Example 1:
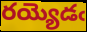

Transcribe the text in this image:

రయ్యెడఁ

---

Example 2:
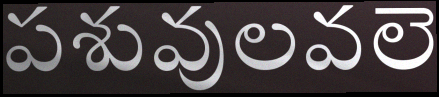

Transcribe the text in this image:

పశువులవలె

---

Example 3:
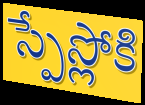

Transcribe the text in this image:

స్పేస్లోకి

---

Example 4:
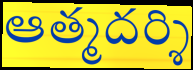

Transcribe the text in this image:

ఆత్మదర్శి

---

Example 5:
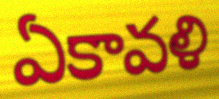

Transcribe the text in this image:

ఏకావళి